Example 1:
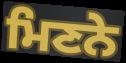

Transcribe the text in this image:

ਮਿਣਨੇ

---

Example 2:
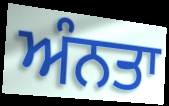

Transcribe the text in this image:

ਅੰਨਤਾ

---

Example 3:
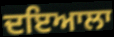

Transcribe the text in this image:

ਦਇਆਲਾ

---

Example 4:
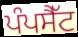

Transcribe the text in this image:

ਪੰਪਸੈੱਟ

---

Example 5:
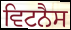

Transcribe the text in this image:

ਵਿਟਨੈਸ